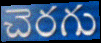
చెరగు